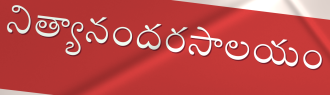
నిత్యానందరసాలయం